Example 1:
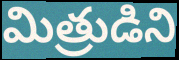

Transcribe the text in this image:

మిత్రుడిని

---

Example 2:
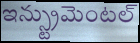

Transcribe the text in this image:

ఇన్స్ట్రుమెంటల్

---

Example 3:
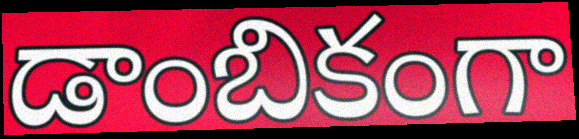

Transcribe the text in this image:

డాంబికంగా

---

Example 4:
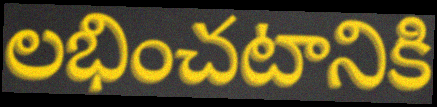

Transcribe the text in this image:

లభించటానికి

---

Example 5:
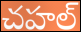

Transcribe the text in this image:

చహల్